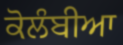
ਕੋਲੰਬੀਆ